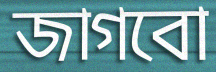
জাগবো